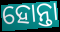
ହୋନ୍ତା